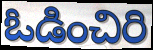
ఓడించిరి